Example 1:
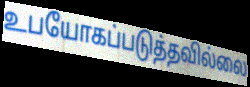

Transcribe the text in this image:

உபயோகப்படுத்தவில்லை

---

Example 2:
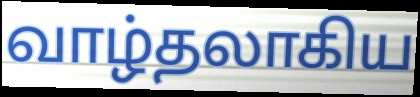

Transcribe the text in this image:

வாழ்தலாகிய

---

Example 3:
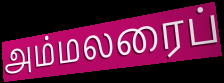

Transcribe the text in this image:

அம்மலரைப்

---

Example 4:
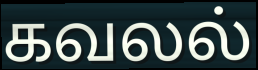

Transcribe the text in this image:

கவலல்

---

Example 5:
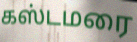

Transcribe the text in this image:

கஸ்டமரை